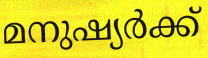
മനുഷ്യർക്ക്